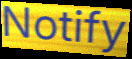
Notify